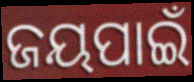
ଜୟପାଇଁ